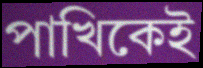
পাখিকেই